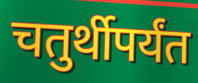
चतुर्थीपर्यंत